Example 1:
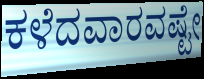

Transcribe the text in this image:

ಕಳೆದವಾರವಷ್ಟೇ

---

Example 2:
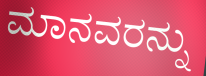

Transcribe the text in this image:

ಮಾನವರನ್ನು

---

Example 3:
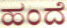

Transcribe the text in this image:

ಹಂದೆ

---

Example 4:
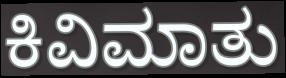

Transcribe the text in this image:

ಕಿವಿಮಾತು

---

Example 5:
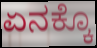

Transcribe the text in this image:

ಏನಕ್ಕೊ